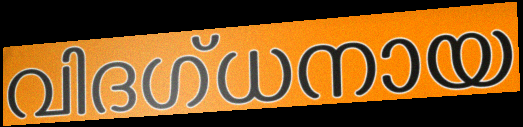
വിദഗ്ധനായ